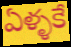
ఏళ్ళకే